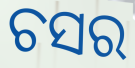
ଚସର